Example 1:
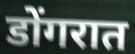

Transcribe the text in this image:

डोंगरात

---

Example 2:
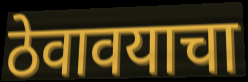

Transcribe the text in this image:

ठेवावयाचा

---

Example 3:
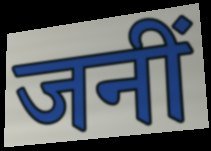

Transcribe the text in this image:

जनीं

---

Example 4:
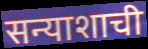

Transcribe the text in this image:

सन्याशाची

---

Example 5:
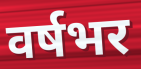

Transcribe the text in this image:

वर्षभर